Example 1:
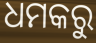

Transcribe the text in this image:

ଧମକରୁ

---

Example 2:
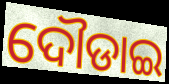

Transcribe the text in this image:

ଦୌଡାଇ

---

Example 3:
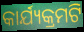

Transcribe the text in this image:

କାର୍ଯ୍ୟକ୍ରମଟି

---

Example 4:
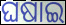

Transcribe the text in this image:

ଘଷାଇ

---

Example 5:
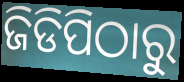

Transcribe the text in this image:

ଜିଡିପିଠାରୁ